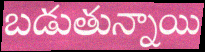
బడుతున్నాయి